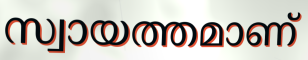
സ്വായത്തമാണ്